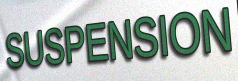
SUSPENSION